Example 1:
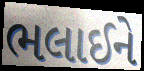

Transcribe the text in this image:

ભલાઈને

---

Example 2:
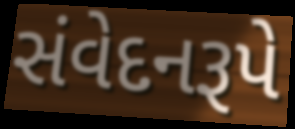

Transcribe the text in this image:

સંવેદનરૂપે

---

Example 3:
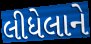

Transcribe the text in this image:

લીધેલાને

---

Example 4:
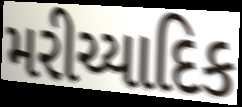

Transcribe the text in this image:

મરીચ્યાદિક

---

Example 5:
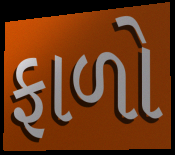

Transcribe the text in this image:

ફાળો